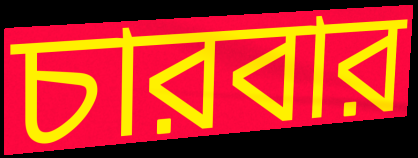
চারবার